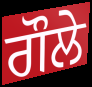
ਗੌਲੇ